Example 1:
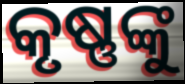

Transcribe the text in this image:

କୃଷ୍ଣଙ୍କୁ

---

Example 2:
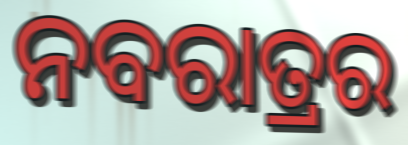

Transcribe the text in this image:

ନବରାତ୍ରର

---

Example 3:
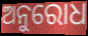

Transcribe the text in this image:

ଅନୁରୋଧ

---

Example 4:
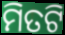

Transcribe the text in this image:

ମିତଟି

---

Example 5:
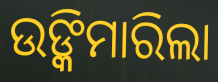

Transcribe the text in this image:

ଉଙ୍କିମାରିଲା